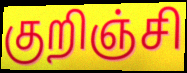
குறிஞ்சி